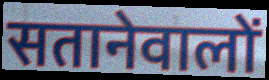
सतानेवालों